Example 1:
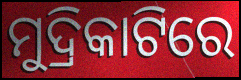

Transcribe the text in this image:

ମୁଦ୍ରିକାଟିରେ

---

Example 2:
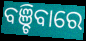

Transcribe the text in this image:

ବଞ୍ଚିବାରେ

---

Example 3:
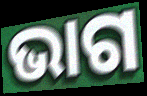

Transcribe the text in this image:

ଭାଗ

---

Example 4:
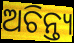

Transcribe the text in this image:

ଅଚିନ୍ତ୍ଯ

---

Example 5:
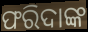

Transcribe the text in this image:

ଫରିଦାଙ୍କ